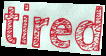
tired